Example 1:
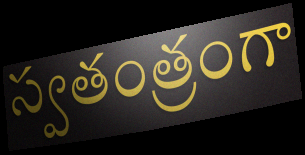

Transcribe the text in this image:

స్వతంత్రంగా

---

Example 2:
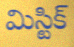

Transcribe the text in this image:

మిస్టిక్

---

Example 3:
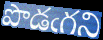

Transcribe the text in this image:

పొడఁగని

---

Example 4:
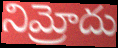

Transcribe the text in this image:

నిమ్రోదు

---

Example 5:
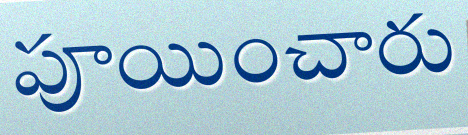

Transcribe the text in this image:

పూయించారు